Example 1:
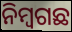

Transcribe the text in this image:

ନିମ୍ୱଗଛ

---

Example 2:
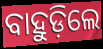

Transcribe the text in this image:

ବାହୁଡ଼ିଲେ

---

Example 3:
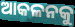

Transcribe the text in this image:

ଆକଳନକୁ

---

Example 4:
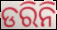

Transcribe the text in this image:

ଡରିନି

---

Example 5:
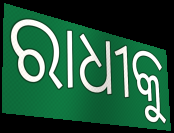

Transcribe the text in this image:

ରାଧୀକୁ